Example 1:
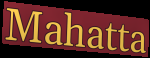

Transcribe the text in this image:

Mahatta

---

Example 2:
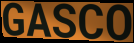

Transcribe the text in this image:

GASCO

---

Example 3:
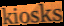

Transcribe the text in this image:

kiosks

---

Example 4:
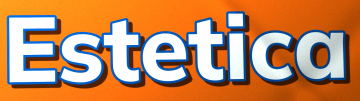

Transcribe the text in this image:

Estetica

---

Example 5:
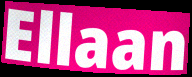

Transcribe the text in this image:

Ellaan